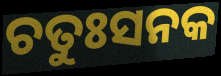
ଚତୁଃସନକ